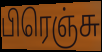
பிரெஞ்சு